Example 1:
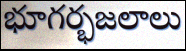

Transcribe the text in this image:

భూగర్భజలాలు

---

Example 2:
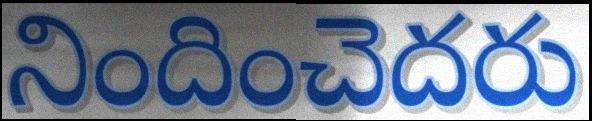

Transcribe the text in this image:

నిందించెదరు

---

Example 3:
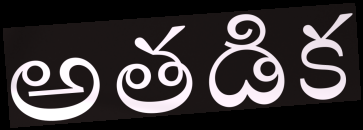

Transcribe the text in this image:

అతడిక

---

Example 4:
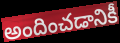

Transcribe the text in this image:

అందించడానికీ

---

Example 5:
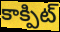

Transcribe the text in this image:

కాక్పిట్